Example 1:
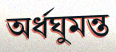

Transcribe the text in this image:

অর্ধঘুমন্ত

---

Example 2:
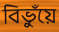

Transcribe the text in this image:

বিভুঁয়ে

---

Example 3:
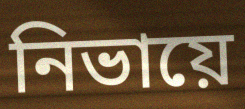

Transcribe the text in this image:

নিভায়ে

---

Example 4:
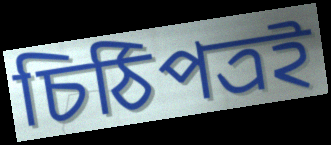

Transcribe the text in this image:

চিঠিপত্রই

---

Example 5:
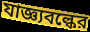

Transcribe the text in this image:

যাজ্ঞ্যবল্কের